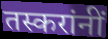
तस्करांनीं